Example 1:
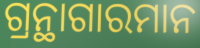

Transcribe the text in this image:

ଗ୍ରନ୍ଥାଗାରମାନ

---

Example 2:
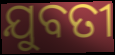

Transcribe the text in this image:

ଯୁବତୀ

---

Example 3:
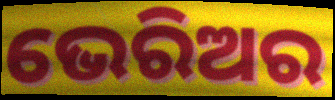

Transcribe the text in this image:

ଭେରିଅର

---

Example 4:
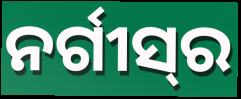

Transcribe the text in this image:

ନର୍ଗୀସ୍‍ର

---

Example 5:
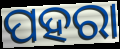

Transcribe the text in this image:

ପହରା